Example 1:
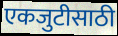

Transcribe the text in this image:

एकजुटीसाठी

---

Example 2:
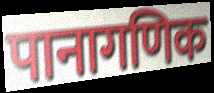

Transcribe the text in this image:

पानागणिक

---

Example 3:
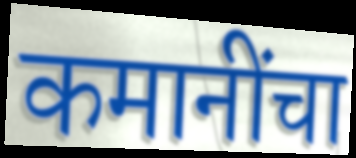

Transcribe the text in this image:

कमानींचा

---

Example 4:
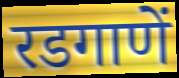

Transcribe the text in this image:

रडगाणें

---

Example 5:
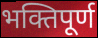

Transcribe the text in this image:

भक्तिपूर्ण